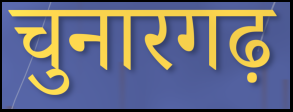
चुनारगढ़